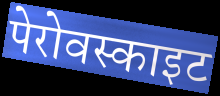
पेरोवस्काइट